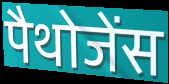
पैथोजेंस